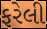
ફરેલી